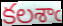
కలశాఁ